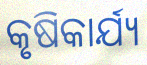
କୃଷିକାର୍ଯ୍ୟ